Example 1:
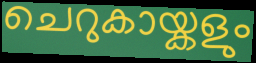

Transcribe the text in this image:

ചെറുകായ്കളും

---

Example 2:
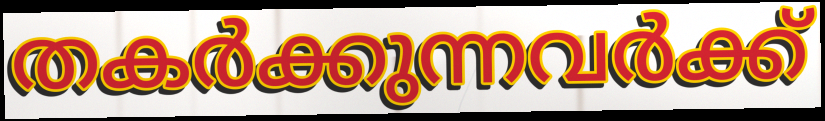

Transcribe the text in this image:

തകർക്കുന്നവർക്ക്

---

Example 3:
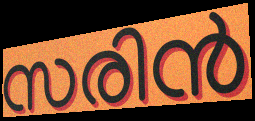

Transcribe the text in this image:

സരിൻ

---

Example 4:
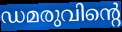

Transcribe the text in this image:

ഡമരുവിന്റെ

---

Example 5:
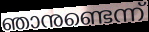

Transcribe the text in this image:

ഞാനുണ്ടെന്ന്